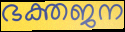
ഭക്തജന